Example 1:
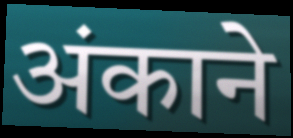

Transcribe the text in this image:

अंकाने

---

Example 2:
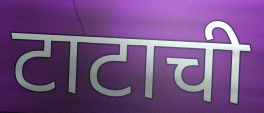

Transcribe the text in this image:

टाटाची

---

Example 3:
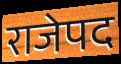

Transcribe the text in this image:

राजेपद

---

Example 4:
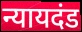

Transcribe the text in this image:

न्यायदंड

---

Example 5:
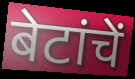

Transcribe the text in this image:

बेटांचें